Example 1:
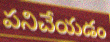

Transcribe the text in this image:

పనిచేయడం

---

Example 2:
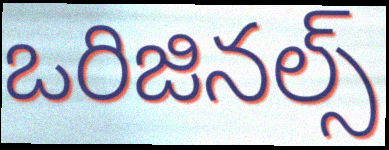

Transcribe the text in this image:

ఒరిజినల్స్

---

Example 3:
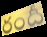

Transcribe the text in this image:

రందీ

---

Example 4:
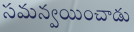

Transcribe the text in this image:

సమన్వయించాడు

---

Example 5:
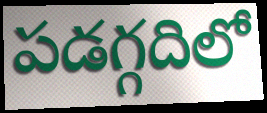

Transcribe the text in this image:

పడగ్గదిలో